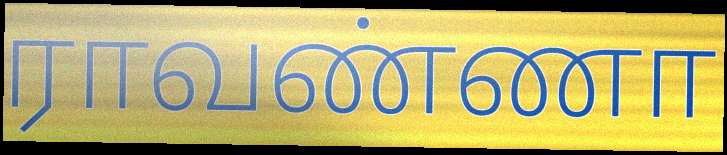
ராவண்ணா